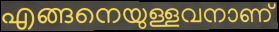
എങ്ങനെയുള്ളവനാണ്